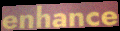
enhance